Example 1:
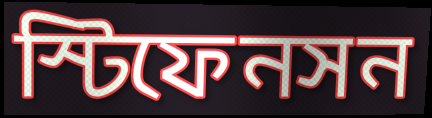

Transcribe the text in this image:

স্টিফেনসন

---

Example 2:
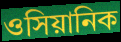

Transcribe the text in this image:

ওসিয়ানিক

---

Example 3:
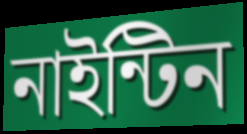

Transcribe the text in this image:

নাইন্টিন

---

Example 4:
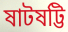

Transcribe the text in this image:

ষাটষট্টি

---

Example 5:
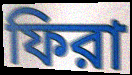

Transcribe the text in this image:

ফিরা